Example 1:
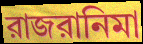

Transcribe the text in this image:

রাজরানিমা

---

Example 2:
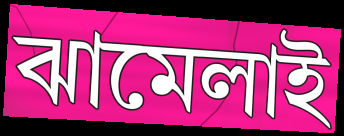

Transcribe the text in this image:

ঝামেলাই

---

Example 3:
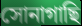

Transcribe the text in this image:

সোনাগাছি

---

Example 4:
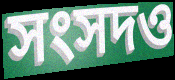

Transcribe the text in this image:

সংসদও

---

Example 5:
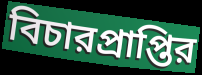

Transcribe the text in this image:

বিচারপ্রাপ্তির